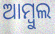
ଆମ୍ବୁଲ